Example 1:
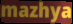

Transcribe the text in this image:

mazhya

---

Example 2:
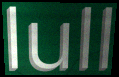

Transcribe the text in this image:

lull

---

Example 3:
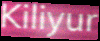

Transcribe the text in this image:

Kiliyur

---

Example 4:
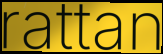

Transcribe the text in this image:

rattan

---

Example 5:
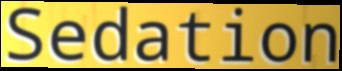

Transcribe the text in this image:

Sedation